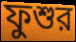
ফুশুর